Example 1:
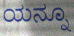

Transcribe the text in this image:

ಯನ್ನೂ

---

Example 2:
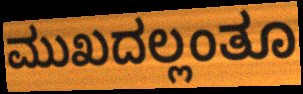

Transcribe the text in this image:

ಮುಖದಲ್ಲಂತೂ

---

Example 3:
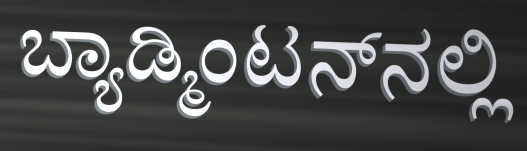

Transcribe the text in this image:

ಬ್ಯಾಡ್ಮಿಂಟನ್‌ನಲ್ಲಿ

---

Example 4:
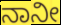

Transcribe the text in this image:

ನಾನೀ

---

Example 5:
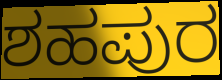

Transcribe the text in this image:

ಶಹಪುರ